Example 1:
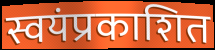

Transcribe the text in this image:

स्वयंप्रकाशित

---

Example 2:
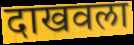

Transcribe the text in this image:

दाखवला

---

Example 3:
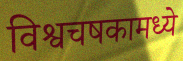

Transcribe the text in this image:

विश्वचषकामध्ये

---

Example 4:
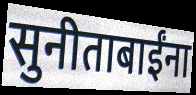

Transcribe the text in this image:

सुनीताबाईंना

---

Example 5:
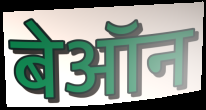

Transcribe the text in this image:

बेऑन